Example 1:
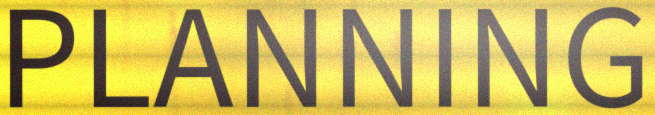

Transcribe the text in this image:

PLANNING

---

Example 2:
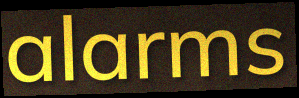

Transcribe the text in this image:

alarms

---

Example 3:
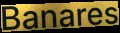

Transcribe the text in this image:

Banares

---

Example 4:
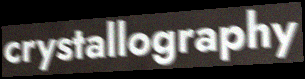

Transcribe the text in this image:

crystallography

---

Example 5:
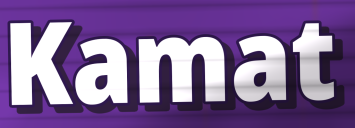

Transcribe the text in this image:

Kamat